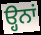
ੳ੍ਹਨਾਂ